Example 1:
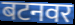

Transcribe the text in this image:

बटनवर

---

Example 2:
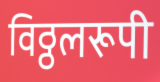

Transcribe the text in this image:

विठ्ठलरूपी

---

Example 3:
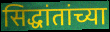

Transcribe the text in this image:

सिद्धांतांच्या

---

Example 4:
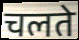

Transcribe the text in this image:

चलते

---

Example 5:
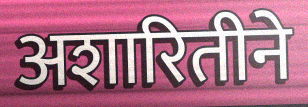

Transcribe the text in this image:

अशारितीने